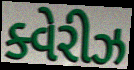
ક્વેરીઝ